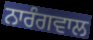
ਨਾਰੰਗਵਾਲ